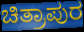
ಚಿತ್ರಾಪುರ